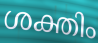
ശക്തിം